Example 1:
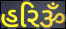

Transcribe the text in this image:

હરિૐ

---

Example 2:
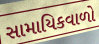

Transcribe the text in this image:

સામાયિકવાળો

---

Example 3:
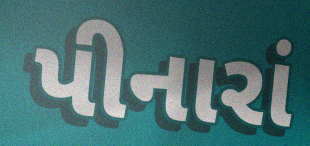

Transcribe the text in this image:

પીનારાં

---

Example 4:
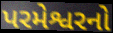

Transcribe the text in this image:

પરમેશ્વરનો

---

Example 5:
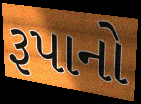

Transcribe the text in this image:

રૂપાનો